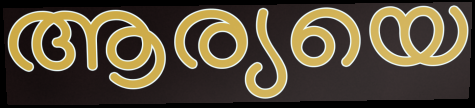
ആര്യയെ